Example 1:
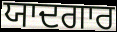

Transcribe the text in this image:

ਯਾਦਗਾਰ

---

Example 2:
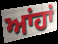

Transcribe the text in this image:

ਆਂਹਾਂ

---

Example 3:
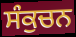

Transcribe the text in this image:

ਸੰਕੁਚਨ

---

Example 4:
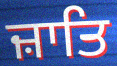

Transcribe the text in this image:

ਜ਼ਾਤਿ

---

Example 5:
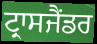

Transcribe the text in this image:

ਟ੍ਰਾਸਜੈਂਡਰ